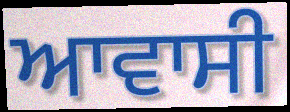
ਆਵਾਸੀ